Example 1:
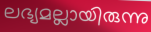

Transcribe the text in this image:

ലഭ്യമല്ലായിരുന്നു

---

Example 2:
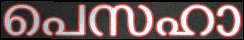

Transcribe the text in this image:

പെസഹാ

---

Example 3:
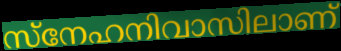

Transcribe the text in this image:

സ്നേഹനിവാസിലാണ്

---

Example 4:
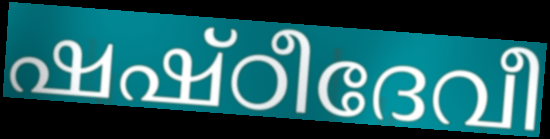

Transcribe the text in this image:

ഷഷ്ഠീദേവീ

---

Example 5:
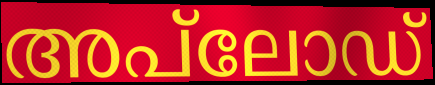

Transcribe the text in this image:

അപ്‌ലോഡ്